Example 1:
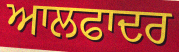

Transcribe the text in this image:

ਆਲਫਾਦਰ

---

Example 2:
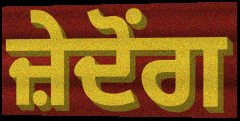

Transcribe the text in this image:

ਜ਼ੇਦੋਂਗ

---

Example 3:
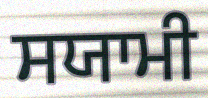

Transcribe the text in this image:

ਸਯਾਮੀ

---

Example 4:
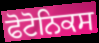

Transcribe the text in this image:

ਫੋਟੋਨਿਕਸ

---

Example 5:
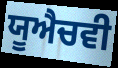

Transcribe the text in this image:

ਯੂਐਚਵੀ